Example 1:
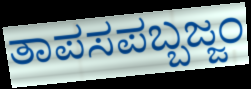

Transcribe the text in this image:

ತಾಪಸಪಬ್ಬಜ್ಜಂ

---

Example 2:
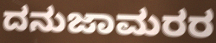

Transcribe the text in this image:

ದನುಜಾಮರರ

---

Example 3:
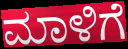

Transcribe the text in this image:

ಮಾಳಿಗೆ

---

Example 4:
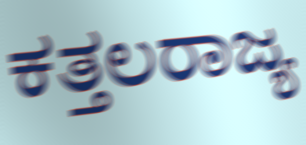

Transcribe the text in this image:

ಕತ್ತಲರಾಜ್ಯ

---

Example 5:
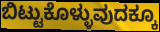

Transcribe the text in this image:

ಬಿಟ್ಟುಕೊಳ್ಳುವುದಕ್ಕೂ